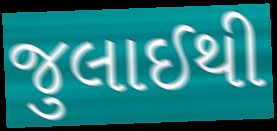
જુલાઈથી